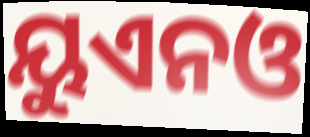
ୟୁଏନଓ